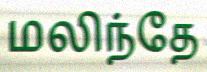
மலிந்தே